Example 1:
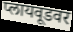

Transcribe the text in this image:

प्लायवूडवर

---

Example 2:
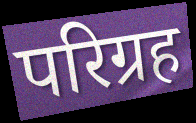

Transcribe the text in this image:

परिग्रह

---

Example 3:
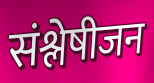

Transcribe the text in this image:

संश्लेषीजन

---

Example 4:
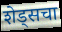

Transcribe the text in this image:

शेड्सचा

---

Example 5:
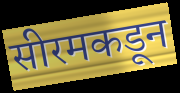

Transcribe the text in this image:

सीरमकडून